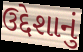
ઉદ્દેશાનું